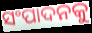
ସଂପାଦନକୁ